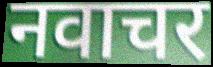
नवाचर